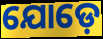
ଯୋଡ଼େ